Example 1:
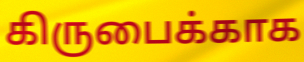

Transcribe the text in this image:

கிருபைக்காக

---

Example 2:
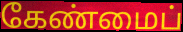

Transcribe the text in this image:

கேண்மைப்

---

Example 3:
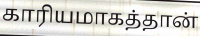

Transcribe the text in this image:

காரியமாகத்தான்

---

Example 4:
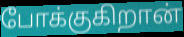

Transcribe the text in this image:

போக்குகிறான்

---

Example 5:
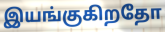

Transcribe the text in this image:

இயங்குகிறதோ